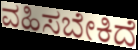
ವಹಿಸಬೇಕಿದೆ